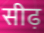
सीढ़